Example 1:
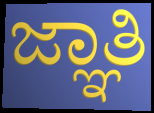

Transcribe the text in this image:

ಜ್ಞಾತಿ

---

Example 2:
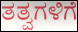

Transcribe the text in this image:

ತತ್ವಗಳಿಗೆ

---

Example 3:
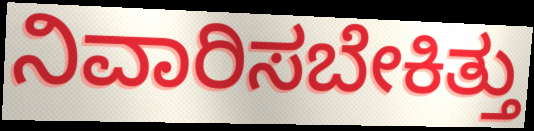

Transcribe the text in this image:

ನಿವಾರಿಸಬೇಕಿತ್ತು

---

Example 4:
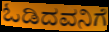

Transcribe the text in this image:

ಓಡಿದವನಿಗೆ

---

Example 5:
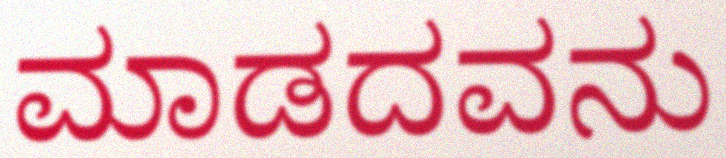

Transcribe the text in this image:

ಮಾಡದವನು